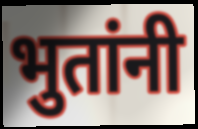
भुतांनी